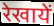
रेखायें